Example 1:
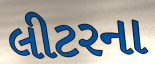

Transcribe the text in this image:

લીટરના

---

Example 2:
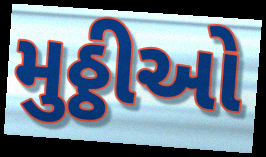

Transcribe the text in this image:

મુઠ્ઠીઓ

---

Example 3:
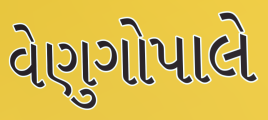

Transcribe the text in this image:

વેણુગોપાલે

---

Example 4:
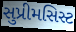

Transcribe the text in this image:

સુપ્રીમસિસ્ટ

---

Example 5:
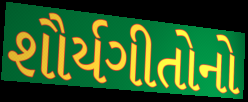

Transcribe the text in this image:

શૌર્યગીતોનો